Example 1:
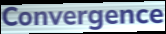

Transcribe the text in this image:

Convergence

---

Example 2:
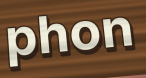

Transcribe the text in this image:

phon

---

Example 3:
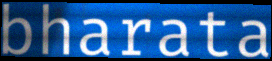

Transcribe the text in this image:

bharata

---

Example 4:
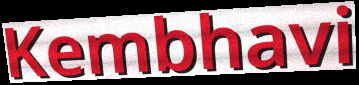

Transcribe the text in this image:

Kembhavi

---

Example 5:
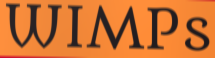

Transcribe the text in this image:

WIMPs